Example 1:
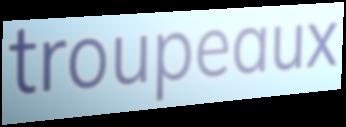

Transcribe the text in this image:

troupeaux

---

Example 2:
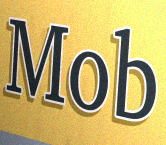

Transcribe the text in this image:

Mob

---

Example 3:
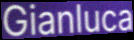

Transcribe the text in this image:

Gianluca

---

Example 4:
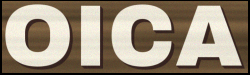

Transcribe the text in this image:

OICA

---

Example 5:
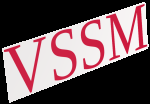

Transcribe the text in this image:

VSSM